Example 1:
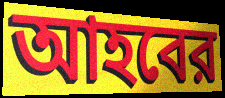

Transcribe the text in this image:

আহবের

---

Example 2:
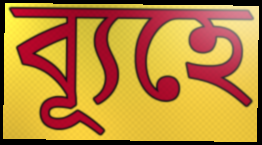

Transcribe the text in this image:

ব্যূহে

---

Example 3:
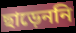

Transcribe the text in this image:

ছাড়েননি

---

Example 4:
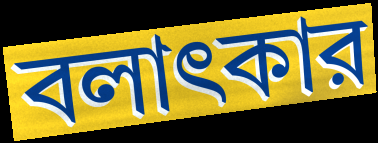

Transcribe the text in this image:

বলাৎকার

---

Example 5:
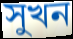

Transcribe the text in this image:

সুখন